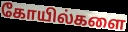
கோயில்களை